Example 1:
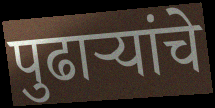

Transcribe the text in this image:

पुढाऱ्यांचे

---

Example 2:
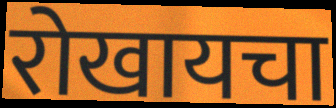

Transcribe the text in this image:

रोखायचा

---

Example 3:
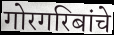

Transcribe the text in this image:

गोरगरिबांचे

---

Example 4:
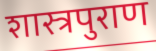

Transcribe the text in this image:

शास्त्रपुराण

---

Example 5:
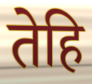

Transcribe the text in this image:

तेहि